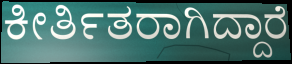
ಕೀರ್ತಿತರಾಗಿದ್ದಾರೆ